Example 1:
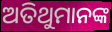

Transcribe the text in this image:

ଅତିଥୁମାନଙ୍କ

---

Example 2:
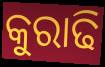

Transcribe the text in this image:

କୁରାଢି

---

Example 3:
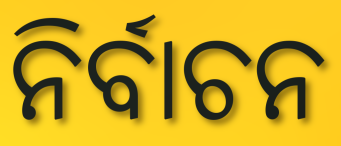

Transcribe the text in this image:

ନିର୍ବାଚନ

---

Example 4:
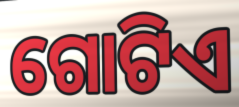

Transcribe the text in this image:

ଗୋଟିଏ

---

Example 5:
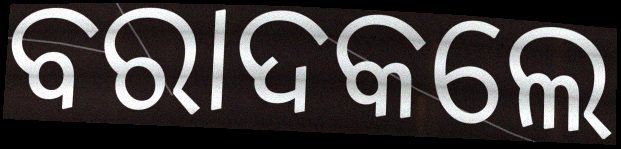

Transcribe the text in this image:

ବରାଦକଲେ